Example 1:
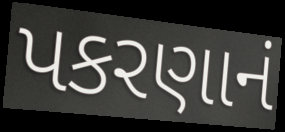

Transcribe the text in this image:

પકરણાનં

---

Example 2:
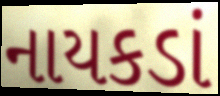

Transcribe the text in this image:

નાયકડાં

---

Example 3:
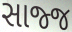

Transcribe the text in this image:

સાજ્જ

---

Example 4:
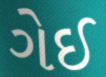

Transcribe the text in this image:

ગેઈ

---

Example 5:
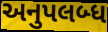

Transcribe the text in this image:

અનુપલબ્ધ